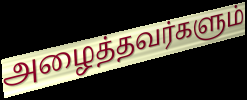
அழைத்தவர்களும்